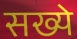
सख्ये